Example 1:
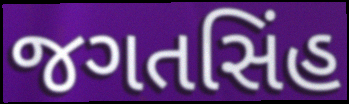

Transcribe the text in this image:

જગતસિંહ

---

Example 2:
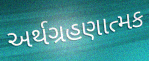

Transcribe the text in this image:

અર્થગ્રહણાત્મક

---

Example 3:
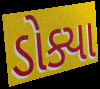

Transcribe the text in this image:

ડોક્યા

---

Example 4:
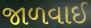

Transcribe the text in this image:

જાળવાઈ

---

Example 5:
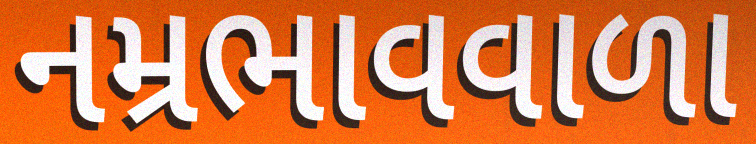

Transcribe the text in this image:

નમ્રભાવવાળા